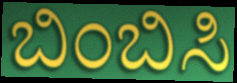
ಬಿಂಬಿಸಿ